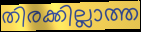
തിരക്കില്ലാത്ത